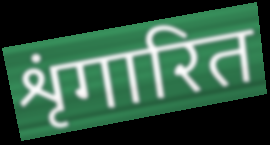
शृंगारित